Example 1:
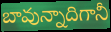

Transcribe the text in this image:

బావున్నాదిగానీ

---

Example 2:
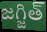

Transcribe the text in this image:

జగ్జిత్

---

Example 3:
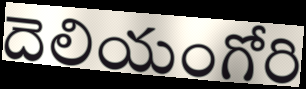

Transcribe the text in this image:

దెలియంగోరి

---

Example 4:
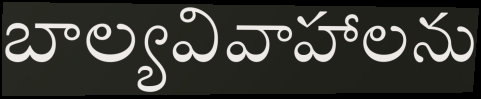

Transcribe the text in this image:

బాల్యవివాహాలను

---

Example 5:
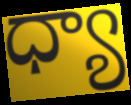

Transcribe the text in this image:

ధ్యా